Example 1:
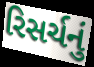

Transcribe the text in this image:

રિસર્ચનું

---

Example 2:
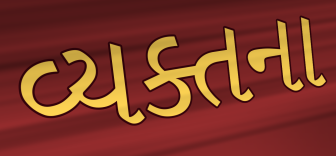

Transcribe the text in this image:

વ્યક્તના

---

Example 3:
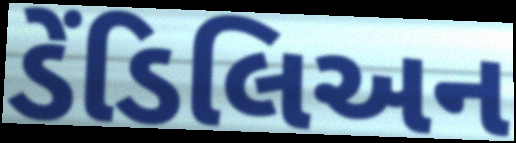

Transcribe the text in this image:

ડેંડિલિઅન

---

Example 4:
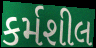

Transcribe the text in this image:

કર્મશીલ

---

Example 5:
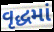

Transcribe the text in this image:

વૃદ્ધમાં